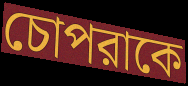
চোপরাকে